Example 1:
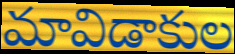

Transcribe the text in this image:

మావిడాకుల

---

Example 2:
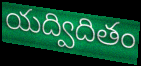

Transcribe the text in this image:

యద్విదితం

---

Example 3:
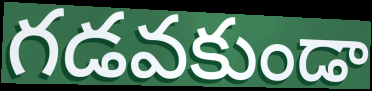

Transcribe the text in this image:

గడవకుండా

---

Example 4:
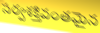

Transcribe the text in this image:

సర్వశక్తివంతమైన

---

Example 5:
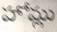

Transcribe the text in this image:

హోమ్లు